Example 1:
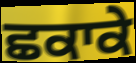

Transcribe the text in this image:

ਛਕਾਕੇ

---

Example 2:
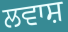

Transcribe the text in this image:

ਲਵਾਸ਼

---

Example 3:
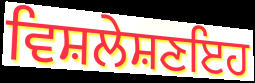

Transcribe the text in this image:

ਵਿਸ਼ਲੇਸ਼ਣਇਹ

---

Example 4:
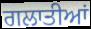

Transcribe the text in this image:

ਗਲਾਤੀਆਂ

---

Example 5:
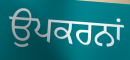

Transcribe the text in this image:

ਉਪਕਰਨਾਂ